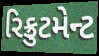
રિક્રુટમેન્ટ